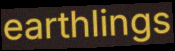
earthlings